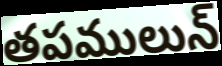
తపములున్